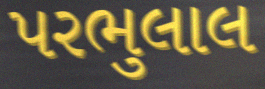
પરભુલાલ